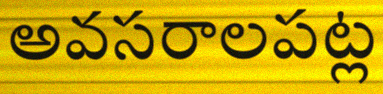
అవసరాలపట్ల